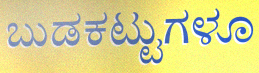
ಬುಡಕಟ್ಟುಗಳೂ